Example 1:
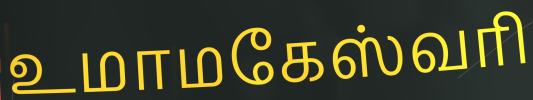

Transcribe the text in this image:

உமாமகேஸ்வரி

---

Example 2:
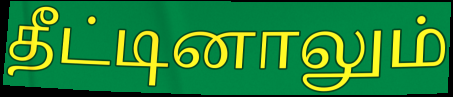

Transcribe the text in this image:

தீட்டினாலும்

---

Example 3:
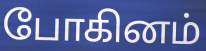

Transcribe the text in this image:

போகினம்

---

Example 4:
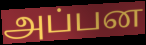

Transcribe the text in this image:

அப்பன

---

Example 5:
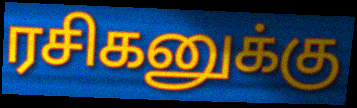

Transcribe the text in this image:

ரசிகனுக்கு